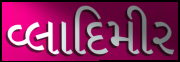
વ્લાદિમીર